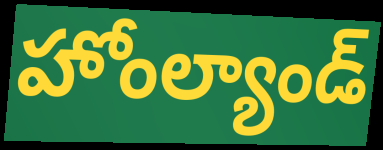
హోంల్యాండ్